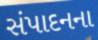
સંપાદનના